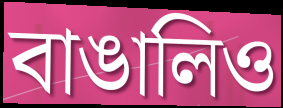
বাঙালিও